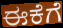
ಈಕೆಗೆ